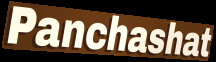
Panchashat